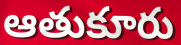
ఆతుకూరు